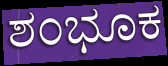
ಶಂಭೂಕ